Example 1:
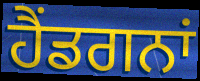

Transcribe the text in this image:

ਹੈਂਡਗਨਾਂ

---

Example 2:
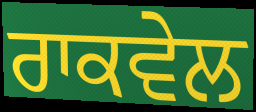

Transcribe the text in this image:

ਰਾਕਵੇਲ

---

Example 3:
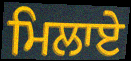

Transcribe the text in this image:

ਮਿਲਾਏ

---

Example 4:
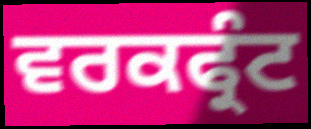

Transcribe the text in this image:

ਵਰਕਫ੍ਰੰਟ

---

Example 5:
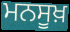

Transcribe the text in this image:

ਮਨਸੂਖ਼